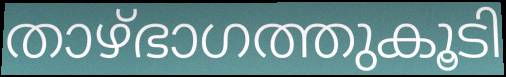
താഴ്ഭാഗത്തുകൂടി